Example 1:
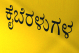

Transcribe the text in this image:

ಕೈಬೆರಳುಗಳ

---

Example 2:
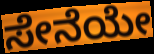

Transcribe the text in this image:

ಸೇನೆಯೇ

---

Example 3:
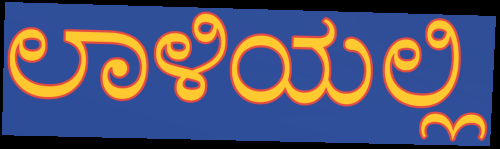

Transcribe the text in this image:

ಲಾಳಿಯಲ್ಲಿ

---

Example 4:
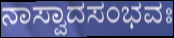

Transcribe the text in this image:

ನಾಸ್ವಾದಸಂಭವಃ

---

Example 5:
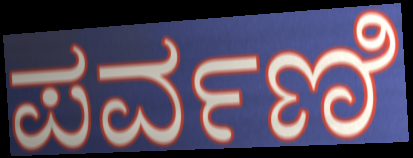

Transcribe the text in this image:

ಪರ್ವಣಿ